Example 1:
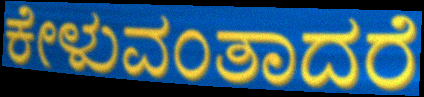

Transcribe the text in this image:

ಕೇಳುವಂತಾದರೆ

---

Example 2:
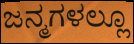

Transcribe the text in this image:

ಜನ್ಮಗಳಲ್ಲೂ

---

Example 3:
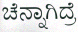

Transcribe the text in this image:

ಚೆನ್ನಾಗಿದ್ರೆ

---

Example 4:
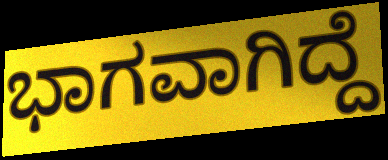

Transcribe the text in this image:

ಭಾಗವಾಗಿದ್ದೆ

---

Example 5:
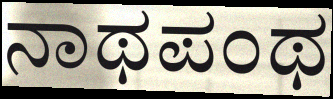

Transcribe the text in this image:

ನಾಥಪಂಥ